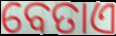
ବେତାଏ